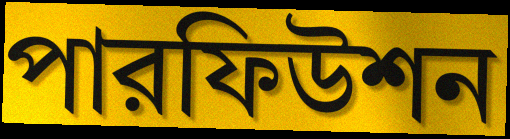
পারফিউশন